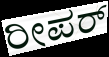
ರೀಪರ್